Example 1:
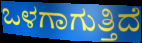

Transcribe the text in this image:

ಒಳಗಾಗುತ್ತಿದೆ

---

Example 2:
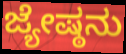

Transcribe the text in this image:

ಜ್ಯೇಷ್ಠನು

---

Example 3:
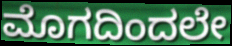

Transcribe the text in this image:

ಮೊಗದಿಂದಲೇ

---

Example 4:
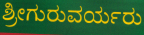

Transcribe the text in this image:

ಶ್ರೀಗುರುವರ್ಯರು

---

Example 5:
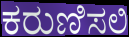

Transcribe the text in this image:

ಕರುಣಿಸಲಿ